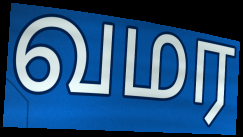
வமர